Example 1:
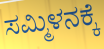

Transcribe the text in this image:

ಸಮ್ಮಿಳನಕ್ಕೆ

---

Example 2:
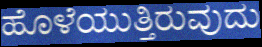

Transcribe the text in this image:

ಹೊಳೆಯುತ್ತಿರುವುದು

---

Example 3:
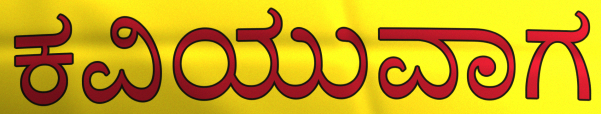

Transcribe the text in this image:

ಕವಿಯುವಾಗ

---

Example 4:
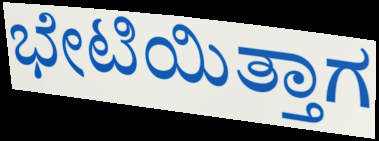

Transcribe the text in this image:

ಭೇಟಿಯಿತ್ತಾಗ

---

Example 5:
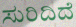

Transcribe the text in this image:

ಸುರಿದಿದೆ